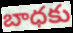
బాధకు